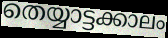
തെയ്യാട്ടക്കാലം